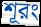
শূরং